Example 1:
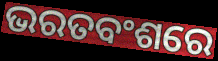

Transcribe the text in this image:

ଭରତବଂଶରେ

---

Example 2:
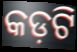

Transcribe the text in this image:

କଡ଼ଟି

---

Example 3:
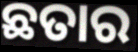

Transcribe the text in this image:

ଛତାର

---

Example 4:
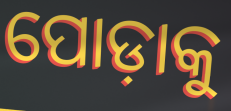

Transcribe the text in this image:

ପୋଡ଼ାକୁ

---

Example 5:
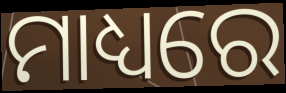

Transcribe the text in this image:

ମାଧ୍ୟରେ